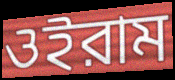
ওইরাম